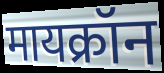
मायक्रॉन